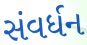
સંવર્ધન